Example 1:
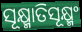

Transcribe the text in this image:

ସୂକ୍ଷ୍ମାତିସୂକ୍ଷ୍ମଂ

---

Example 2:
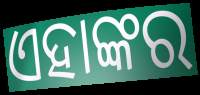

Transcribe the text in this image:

ଏହାଙ୍କର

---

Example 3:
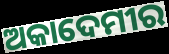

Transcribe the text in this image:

ଅକାଦେମୀର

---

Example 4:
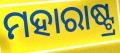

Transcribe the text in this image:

ମହାରାଷ୍ଟ୍ର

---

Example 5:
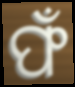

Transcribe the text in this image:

ଫଁ